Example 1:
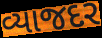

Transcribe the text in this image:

વ્યાજદર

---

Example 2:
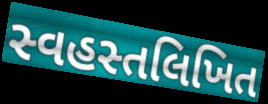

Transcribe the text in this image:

સ્વહસ્તલિખિત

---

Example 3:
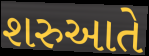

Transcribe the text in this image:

શરુઆતે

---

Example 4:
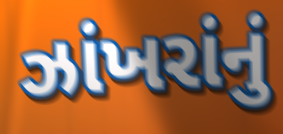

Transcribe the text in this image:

ઝાંખરાંનું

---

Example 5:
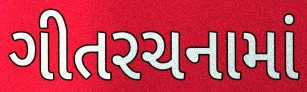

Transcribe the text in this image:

ગીતરચનામાં